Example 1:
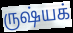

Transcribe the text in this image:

ருஷ்யக்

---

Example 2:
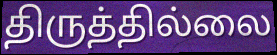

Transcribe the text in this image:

திருத்தில்லை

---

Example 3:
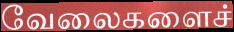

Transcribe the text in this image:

வேலைகளைச்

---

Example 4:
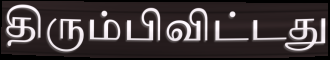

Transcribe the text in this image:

திரும்பிவிட்டது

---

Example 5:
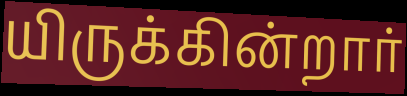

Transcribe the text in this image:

யிருக்கின்றார்